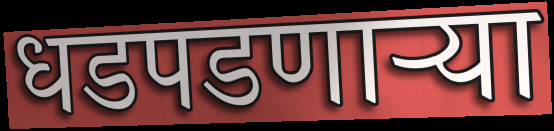
धडपडणाऱ्या